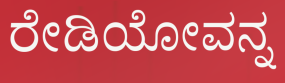
ರೇಡಿಯೋವನ್ನ